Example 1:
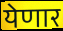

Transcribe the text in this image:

येणार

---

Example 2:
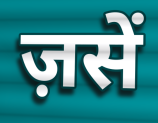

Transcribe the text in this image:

ज़सें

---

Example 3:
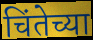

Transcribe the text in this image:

चिंतेच्या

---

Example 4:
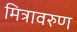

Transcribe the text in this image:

मित्रावरुण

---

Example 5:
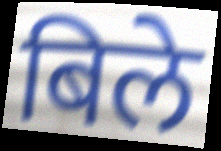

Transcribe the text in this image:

बिले